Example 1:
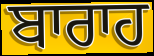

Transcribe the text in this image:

ਬਾਰਾਹ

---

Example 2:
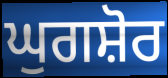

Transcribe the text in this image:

ਘੁਗਸ਼ੋਰ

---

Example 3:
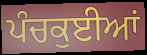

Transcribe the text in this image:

ਪੰਚਕੁਈਆਂ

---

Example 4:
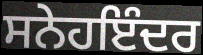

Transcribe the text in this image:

ਸਨੇਹਇੰਦਰ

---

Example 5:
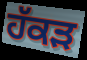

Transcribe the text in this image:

ਹੱਕੜ